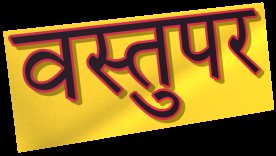
वस्तुपर